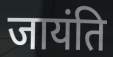
जायंति